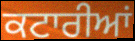
ਕਟਾਰੀਆਂ